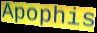
Apophis